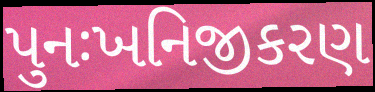
પુનઃખનિજીકરણ